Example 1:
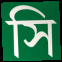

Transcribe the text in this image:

সি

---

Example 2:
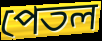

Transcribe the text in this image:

পেতল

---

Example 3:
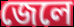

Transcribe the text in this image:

জেলে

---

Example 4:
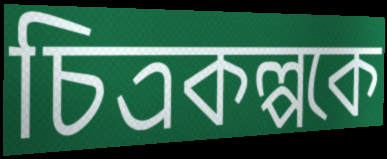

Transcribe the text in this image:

চিত্রকল্পকে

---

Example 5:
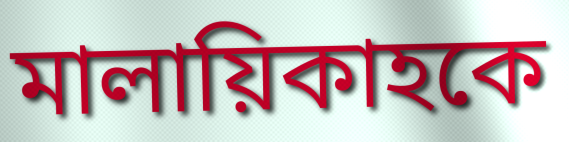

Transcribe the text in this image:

মালায়িকাহকে